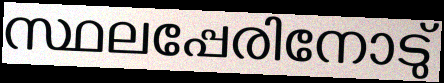
സ്ഥലപ്പേരിനോടു്